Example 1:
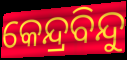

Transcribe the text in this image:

କେନ୍ଦ୍ରବିନ୍ଦୁ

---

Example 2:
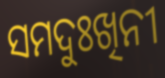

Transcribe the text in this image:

ସମଦୁଃଖିନୀ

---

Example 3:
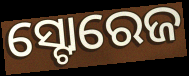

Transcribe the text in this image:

ସ୍ଟୋରେଜ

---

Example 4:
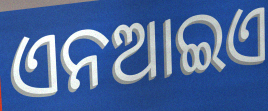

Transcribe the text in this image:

ଏନଆଇଏ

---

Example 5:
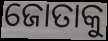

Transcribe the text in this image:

ଜୋତାକୁ